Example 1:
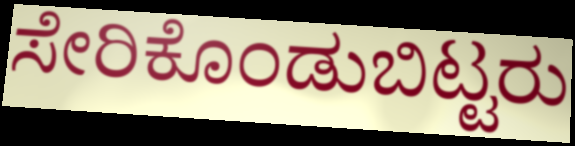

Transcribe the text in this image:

ಸೇರಿಕೊಂಡುಬಿಟ್ಟರು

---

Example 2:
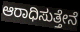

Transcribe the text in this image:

ಆರಾಧಿಸುತ್ತೇನೆ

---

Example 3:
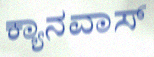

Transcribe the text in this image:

ಕ್ಯಾನವಾಸ್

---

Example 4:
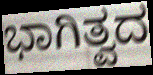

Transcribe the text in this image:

ಭಾಗಿತ್ವದ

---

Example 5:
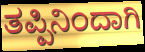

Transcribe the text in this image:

ತಪ್ಪಿನಿಂದಾಗಿ